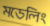
মডেলিং